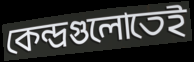
কেন্দ্রগুলোতেই